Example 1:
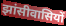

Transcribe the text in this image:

झांसीवासियों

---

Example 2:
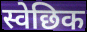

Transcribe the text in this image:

स्वेछिक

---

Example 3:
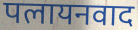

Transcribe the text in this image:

पलायनवाद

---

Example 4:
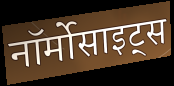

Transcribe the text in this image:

नॉर्मोसाइट्स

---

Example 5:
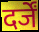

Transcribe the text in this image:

दर्जें